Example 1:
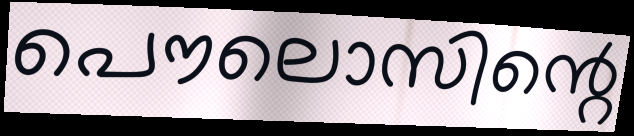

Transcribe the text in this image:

പൌലൊസിന്റെ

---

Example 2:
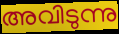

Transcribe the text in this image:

അവിടുന്നു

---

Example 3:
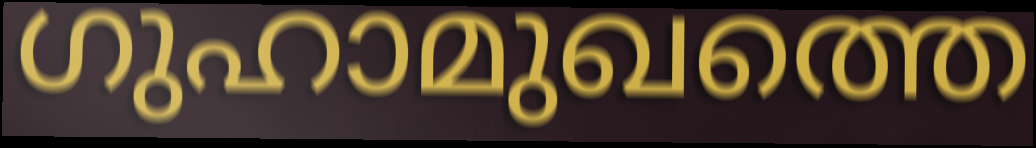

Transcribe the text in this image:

ഗുഹാമുഖത്തെ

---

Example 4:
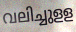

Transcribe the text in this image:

വലിച്ചുളള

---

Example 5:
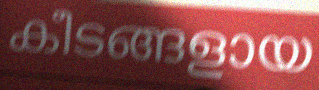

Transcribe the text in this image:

കീടങ്ങളായ